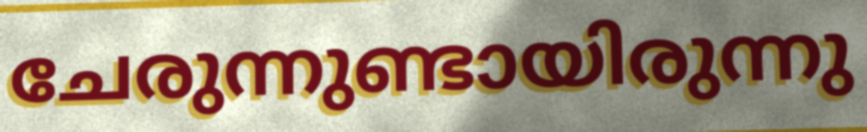
ചേരുന്നുണ്ടായിരുന്നു